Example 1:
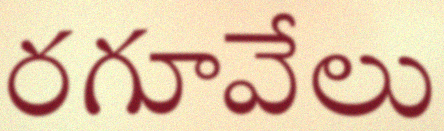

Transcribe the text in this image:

రగూవేలు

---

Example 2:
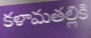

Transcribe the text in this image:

కళామతల్లికి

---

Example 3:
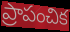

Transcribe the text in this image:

ప్రాపంచిక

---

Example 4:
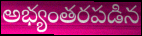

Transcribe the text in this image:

అభ్యంతరపడిన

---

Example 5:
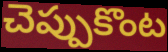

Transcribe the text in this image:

చెప్పుకొంట